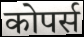
कोपर्स